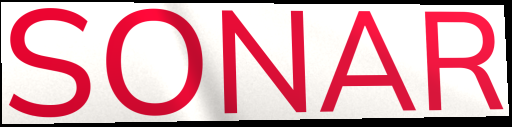
SONAR